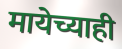
मायेच्याही